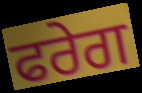
ਫਰੇਗ